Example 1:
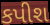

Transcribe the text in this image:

કપીશ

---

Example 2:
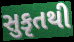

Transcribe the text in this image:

સુકૃતથી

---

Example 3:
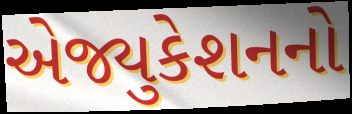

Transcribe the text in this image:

એજ્યુકેશનનો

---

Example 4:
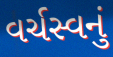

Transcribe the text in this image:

વર્ચસ્વનું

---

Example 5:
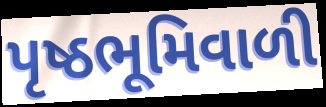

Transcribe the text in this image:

પૃષ્ઠભૂમિવાળી